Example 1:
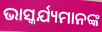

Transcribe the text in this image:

ଭାସ୍କର୍ଯ୍ୟମାନଙ୍କ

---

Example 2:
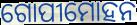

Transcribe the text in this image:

ଗୋପୀମୋହନ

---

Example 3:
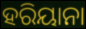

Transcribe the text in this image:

ହରିୟାନା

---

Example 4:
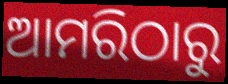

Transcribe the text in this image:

ଆମରିଠାରୁ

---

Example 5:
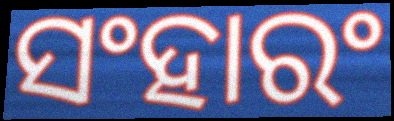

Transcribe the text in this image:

ସଂହାରଂ